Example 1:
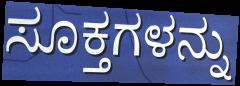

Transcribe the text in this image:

ಸೂಕ್ತಗಳನ್ನು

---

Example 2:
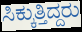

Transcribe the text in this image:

ಸಿಕ್ಕುತ್ತಿದ್ದರು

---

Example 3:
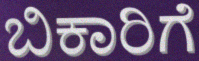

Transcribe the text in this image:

ಬಿಕಾರಿಗೆ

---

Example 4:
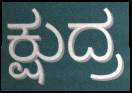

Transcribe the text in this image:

ಕ್ಷುದ್ರ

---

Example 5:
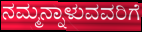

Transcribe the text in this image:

ನಮ್ಮನ್ನಾಳುವವರಿಗೆ